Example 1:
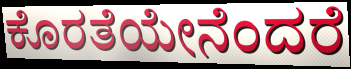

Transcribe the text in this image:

ಕೊರತೆಯೇನೆಂದರೆ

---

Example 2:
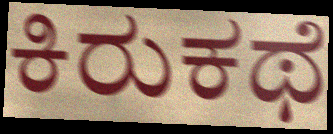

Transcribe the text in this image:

ಕಿರುಕಥೆ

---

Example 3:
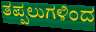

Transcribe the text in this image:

ತಪ್ಪಲುಗಳಿಂದ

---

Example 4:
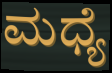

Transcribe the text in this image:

ಮಧ್ಯೆ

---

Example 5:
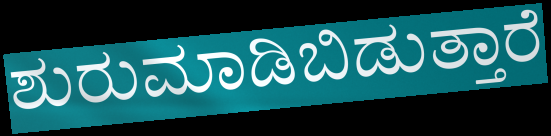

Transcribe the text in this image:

ಶುರುಮಾಡಿಬಿಡುತ್ತಾರೆ